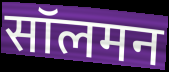
सॉलमन